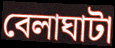
বেলাঘাটা